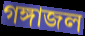
গঙ্গাজল